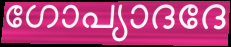
ഗോപ്യാദദേ